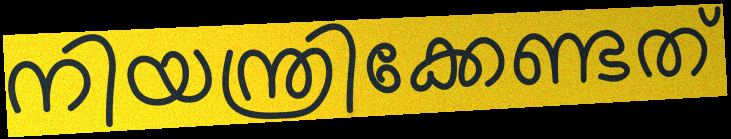
നിയന്ത്രിക്കേണ്ടത്